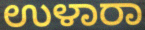
ಉಳಾರಾ